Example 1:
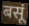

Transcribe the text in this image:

बसूं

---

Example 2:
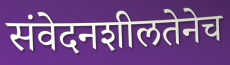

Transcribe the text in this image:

संवेदनशीलतेनेच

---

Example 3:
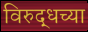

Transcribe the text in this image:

विरुद्धच्या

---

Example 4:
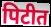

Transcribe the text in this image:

पिटीत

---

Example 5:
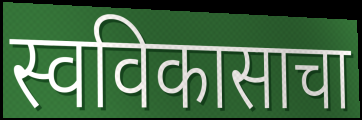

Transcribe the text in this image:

स्वविकासाचा